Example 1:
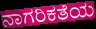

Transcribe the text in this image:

ನಾಗರಿಕತೆಯ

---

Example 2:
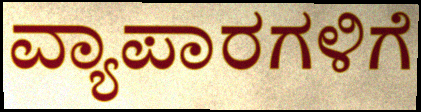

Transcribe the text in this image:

ವ್ಯಾಪಾರಗಳಿಗೆ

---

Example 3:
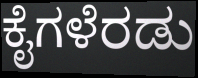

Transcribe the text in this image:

ಕೈಗಳೆರಡು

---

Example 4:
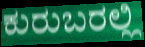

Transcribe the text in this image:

ಕುರುಬರಲ್ಲಿ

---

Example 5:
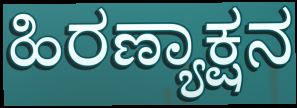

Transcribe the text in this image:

ಹಿರಣ್ಯಾಕ್ಷನ